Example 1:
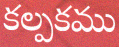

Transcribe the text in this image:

కల్పకము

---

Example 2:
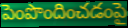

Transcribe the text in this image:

పెంపొందించడంపై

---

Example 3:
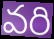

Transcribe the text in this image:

వరి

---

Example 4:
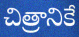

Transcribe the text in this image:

చిత్రానికే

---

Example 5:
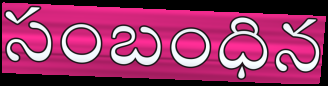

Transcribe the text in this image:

సంబంధిన